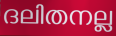
ദലിതനല്ല